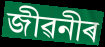
জীৱনীৰ